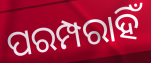
ପରମ୍ପରାହିଁ